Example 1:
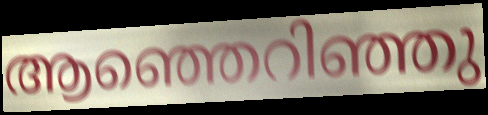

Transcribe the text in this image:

ആഞ്ഞെറിഞ്ഞു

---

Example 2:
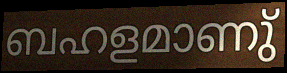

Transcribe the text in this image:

ബഹളമാണു്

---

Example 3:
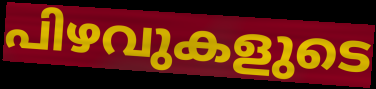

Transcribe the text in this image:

പിഴവുകളുടെ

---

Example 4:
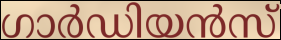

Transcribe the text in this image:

ഗാർഡിയൻസ്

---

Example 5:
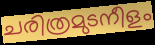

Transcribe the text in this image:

ചരിത്രമുടനീളം